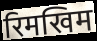
रिमखिम